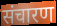
संचारण